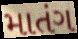
માતંગ